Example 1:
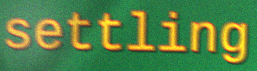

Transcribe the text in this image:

settling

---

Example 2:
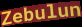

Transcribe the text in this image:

Zebulun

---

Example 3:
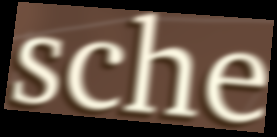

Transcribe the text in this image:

sche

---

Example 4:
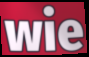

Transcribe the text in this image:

wie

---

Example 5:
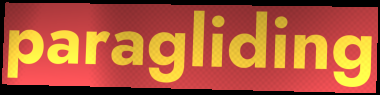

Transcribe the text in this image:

paragliding